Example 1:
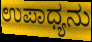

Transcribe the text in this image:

ಉಪಾಧ್ಯನು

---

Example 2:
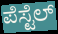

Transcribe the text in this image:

ಪೆಸ್ಟೆಲ್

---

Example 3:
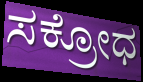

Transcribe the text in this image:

ಸಕ್ರೋಧ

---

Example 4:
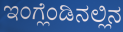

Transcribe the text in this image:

ಇಂಗ್ಲೆಂಡಿನಲ್ಲಿನ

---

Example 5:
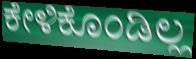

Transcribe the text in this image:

ಕೇಳಿಕೊಂಡಿಲ್ಲ